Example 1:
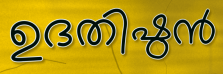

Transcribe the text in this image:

ഉദതിഷ്ഠൻ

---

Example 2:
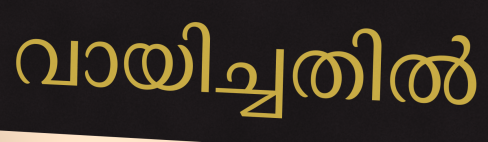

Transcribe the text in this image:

വായിച്ചതിൽ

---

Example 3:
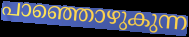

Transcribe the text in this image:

പാഞ്ഞൊഴുകുന്ന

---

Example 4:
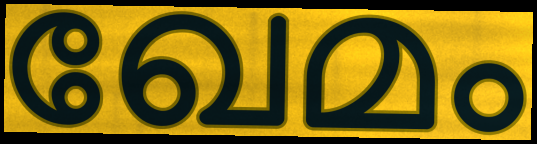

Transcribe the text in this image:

ഖേമം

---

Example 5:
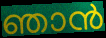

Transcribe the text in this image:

ഞാൻ